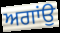
ਅਗਾਂਉ